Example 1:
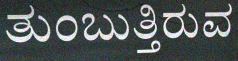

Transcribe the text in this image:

ತುಂಬುತ್ತಿರುವ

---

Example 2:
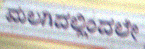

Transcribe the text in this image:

ಮಲಗಿದಲ್ಲಿಂದಲೇ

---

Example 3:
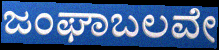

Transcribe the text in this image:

ಜಂಘಾಬಲವೇ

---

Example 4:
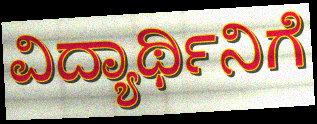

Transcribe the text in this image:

ವಿದ್ಯಾರ್ಥಿನಿಗೆ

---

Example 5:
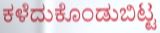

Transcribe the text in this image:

ಕಳೆದುಕೊಂಡುಬಿಟ್ಟ